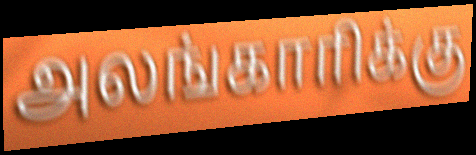
அலங்காரிக்கு